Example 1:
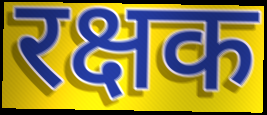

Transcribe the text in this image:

रक्षक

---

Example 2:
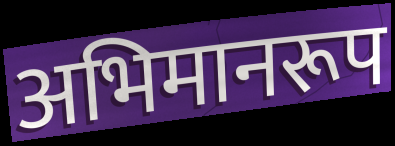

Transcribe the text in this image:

अभिमानरूप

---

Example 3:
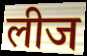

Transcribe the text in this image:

लीज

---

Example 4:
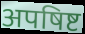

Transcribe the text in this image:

अपषिष्ट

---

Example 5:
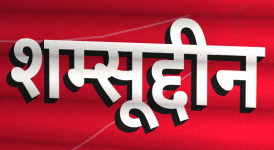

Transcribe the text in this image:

शम्सूद्दीन